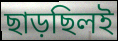
ছাড়ছিলই